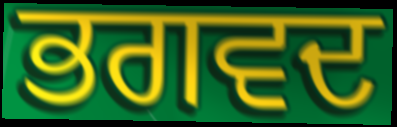
ਭਗਵਦ